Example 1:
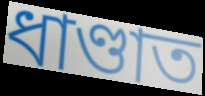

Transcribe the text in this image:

ধাণ্ডাত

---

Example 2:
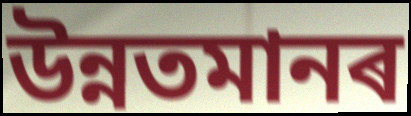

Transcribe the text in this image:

উন্নতমানৰ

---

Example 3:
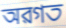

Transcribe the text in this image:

অৱগত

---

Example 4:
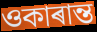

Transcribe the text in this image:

ওকাৰান্ত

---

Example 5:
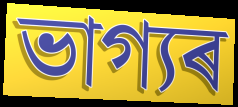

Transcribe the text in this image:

ভাগ্যৰ